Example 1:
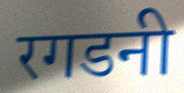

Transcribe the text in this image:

रगडनी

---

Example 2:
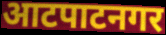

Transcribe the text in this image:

आटपाटनगर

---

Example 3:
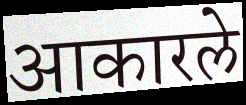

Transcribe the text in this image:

आकारले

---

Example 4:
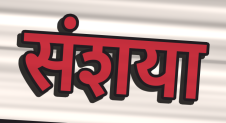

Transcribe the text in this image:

संशया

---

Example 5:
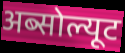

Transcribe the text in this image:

अब्सोल्यूट